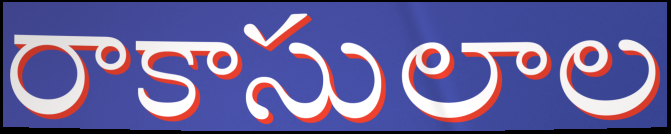
రాకాసులాల